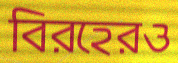
বিরহেরও